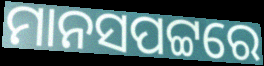
ମାନସପଟ୍ଟରେ